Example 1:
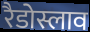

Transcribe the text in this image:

रैडोस्लाव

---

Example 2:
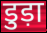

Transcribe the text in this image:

डुड़ा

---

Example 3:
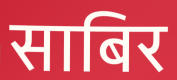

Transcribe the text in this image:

साबिर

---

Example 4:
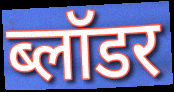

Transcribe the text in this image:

ब्लॉडर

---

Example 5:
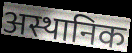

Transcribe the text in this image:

अस्थानिक